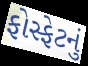
ફોસ્ફેટનું